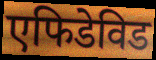
एफिडेविड